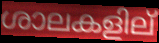
ശാലകളില്